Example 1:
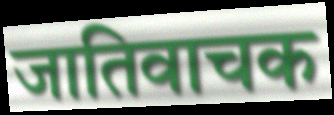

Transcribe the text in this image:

जातिवाचक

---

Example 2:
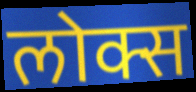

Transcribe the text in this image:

लोक्स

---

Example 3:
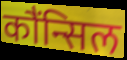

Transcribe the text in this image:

कौंन्सिल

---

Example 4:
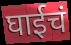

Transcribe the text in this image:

घाईचं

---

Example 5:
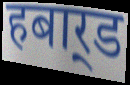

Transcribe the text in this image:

हबार्ड